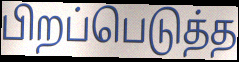
பிறப்பெடுத்த